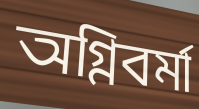
অগ্নিবর্মা